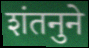
शंतनुने